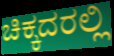
ಚಿಕ್ಕದರಲ್ಲಿ